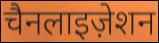
चैनलाइज़ेशन